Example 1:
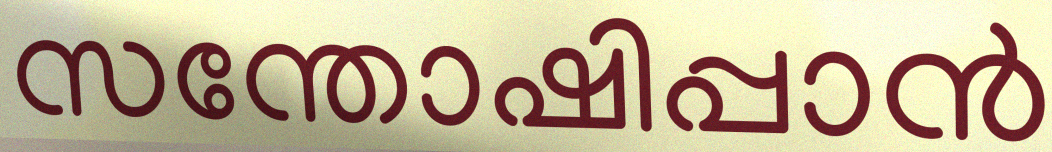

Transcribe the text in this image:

സന്തോഷിപ്പാൻ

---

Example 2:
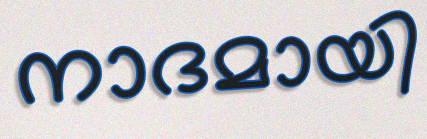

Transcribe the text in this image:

നാദമായി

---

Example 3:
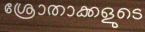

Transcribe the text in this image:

ശ്രോതാക്കളുടെ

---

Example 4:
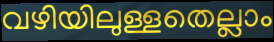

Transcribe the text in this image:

വഴിയിലുള്ളതെല്ലാം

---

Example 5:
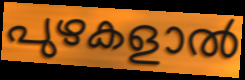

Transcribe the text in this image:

പുഴകളാൽ